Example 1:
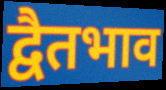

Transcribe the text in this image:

द्वैतभाव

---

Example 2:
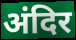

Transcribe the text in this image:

अंदिर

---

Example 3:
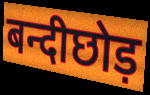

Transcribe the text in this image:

बन्दीछोड़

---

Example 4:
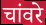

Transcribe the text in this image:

चांवरे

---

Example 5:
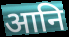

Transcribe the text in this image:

आनि